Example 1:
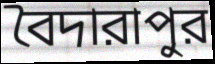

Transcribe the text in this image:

বৈদারাপুর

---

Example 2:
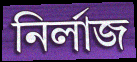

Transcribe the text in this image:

নির্লাজ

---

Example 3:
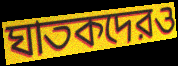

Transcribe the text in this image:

ঘাতকদেরও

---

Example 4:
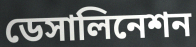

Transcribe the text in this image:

ডেসালিনেশন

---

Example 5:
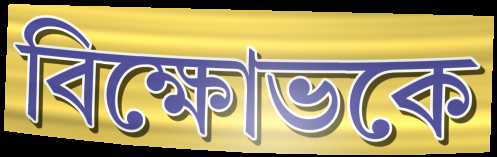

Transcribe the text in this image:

বিক্ষোভকে